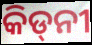
କିଡ୍‍ନୀ